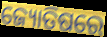
ଜ୍ୟୋତିଷରେ